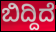
ಬಿದ್ದಿದೆ